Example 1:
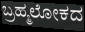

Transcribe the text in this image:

ಬ್ರಹ್ಮಲೋಕದ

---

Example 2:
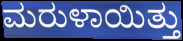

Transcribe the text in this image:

ಮರುಳಾಯಿತ್ತು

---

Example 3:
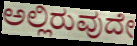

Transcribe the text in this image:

ಅಲ್ಲಿರುವುದೇ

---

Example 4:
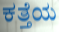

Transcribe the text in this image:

ಕತ್ತೆಯ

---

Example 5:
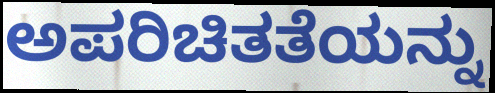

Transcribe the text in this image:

ಅಪರಿಚಿತತೆಯನ್ನು